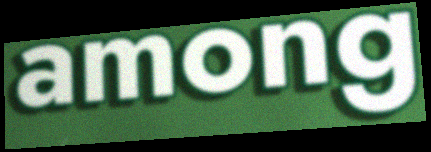
among